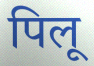
पिलू